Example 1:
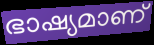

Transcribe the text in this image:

ഭാഷ്യമാണ്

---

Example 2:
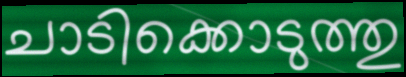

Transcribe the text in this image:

ചാടിക്കൊടുത്തു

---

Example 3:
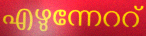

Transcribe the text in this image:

എഴുന്നേററ്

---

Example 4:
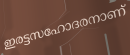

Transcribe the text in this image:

ഇരട്ടസഹോദരനാണ്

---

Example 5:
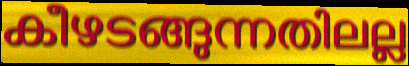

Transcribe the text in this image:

കീഴടങ്ങുന്നതിലല്ല